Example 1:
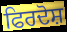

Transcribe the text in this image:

ਫਿਰਦੋਸ਼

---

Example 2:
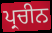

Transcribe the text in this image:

ਪ੍ਰਚੀਨ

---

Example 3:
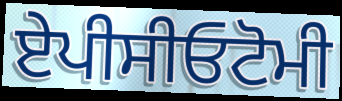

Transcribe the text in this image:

ਏਪੀਸੀਓਟੋਮੀ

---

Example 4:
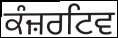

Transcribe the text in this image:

ਕੰਜ਼ਰਟਿਵ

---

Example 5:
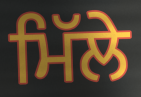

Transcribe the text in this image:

ਮਿੱਲੇ